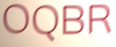
OQBR